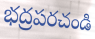
భద్రపరచండి